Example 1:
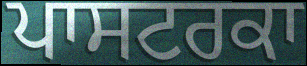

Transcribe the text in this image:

ਪਾਸਟਰਕਾ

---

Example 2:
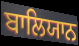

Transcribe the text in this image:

ਬਾਲਿਯਾਨ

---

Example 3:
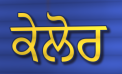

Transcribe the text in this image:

ਕੇਲੋਰ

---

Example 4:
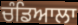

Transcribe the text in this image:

ਚੰਡਿਆਲਾ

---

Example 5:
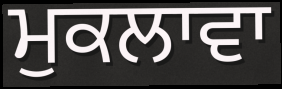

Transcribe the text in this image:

ਮੁਕਲਾਵਾ